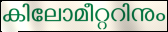
കിലോമീറ്ററിനും